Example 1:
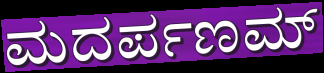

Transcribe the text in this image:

ಮದರ್ಪಣಮ್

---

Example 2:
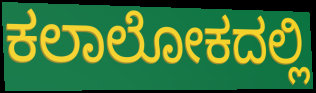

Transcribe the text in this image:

ಕಲಾಲೋಕದಲ್ಲಿ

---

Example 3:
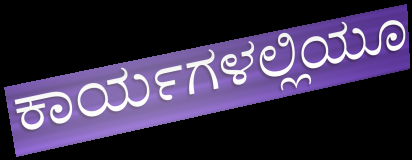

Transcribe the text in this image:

ಕಾರ್ಯಗಳಲ್ಲಿಯೂ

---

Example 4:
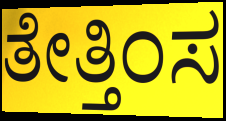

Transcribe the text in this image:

ತೇತ್ತಿಂಸ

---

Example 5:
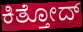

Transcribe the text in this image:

ಕಿತ್ತೋದ್